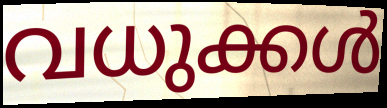
വധുക്കൾ